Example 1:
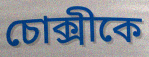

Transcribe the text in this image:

চোক্সীকে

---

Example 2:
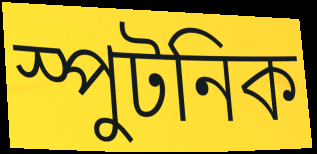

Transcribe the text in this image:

স্পুটনিক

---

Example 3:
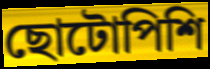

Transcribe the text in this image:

ছোটোপিশি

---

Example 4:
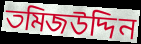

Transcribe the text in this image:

তমিজউদ্দিন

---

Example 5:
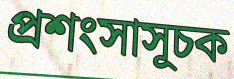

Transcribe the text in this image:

প্রশংসাসূচক